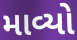
માવ્યો